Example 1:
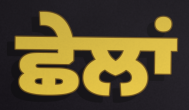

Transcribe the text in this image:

ਛੇਲਾਂ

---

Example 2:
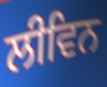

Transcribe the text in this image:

ਲੀਵਿਨ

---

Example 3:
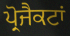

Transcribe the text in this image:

ਪ੍ਰੋਜੈਕਟਾਂ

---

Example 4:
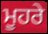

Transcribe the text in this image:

ਮੂਹਰੇ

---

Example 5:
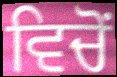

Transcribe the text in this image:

ਵਿਚੋਂ